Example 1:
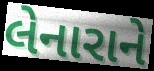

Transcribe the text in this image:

લેનારાને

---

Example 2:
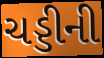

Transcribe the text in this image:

ચડ્ડીની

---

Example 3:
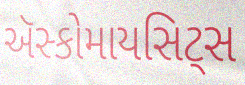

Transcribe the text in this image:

ઍસ્કોમાયસિટ્સ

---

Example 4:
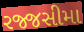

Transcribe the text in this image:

રજ્જસીમા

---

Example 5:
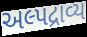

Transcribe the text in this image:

અલ્પદ્રાવ્ય